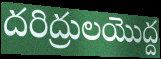
దరిద్రులయొద్ద